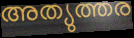
അത്യുത്തര